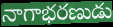
నాగాభరణుడు